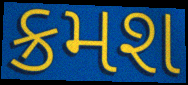
ક્રમશ